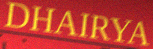
DHAIRYA